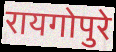
रायगोपुरे